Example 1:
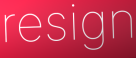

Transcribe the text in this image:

resign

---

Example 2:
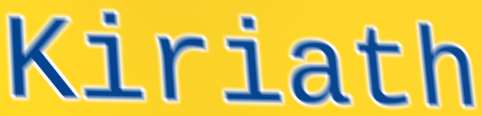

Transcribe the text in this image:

Kiriath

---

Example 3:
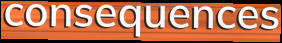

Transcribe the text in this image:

consequences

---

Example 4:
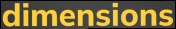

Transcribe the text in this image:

dimensions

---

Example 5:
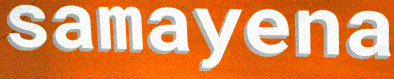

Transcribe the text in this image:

samayena